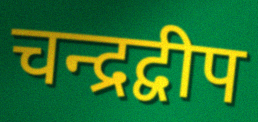
चन्द्रद्वीप